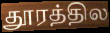
தூரத்தில